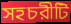
সহচরীটি